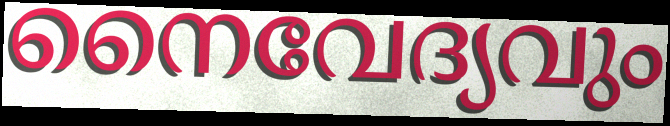
നൈവേദ്യവും